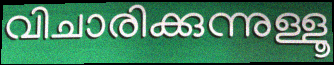
വിചാരിക്കുന്നുള്ളൂ